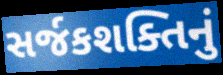
સર્જકશક્તિનું